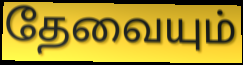
தேவையும்